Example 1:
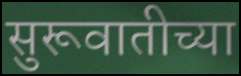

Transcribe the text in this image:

सुरूवातीच्या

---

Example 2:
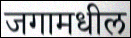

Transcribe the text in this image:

जगामधील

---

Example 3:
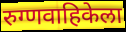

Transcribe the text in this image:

रुग्णवाहिकेला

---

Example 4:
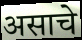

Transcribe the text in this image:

असाचे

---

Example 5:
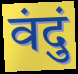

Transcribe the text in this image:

वंदुं